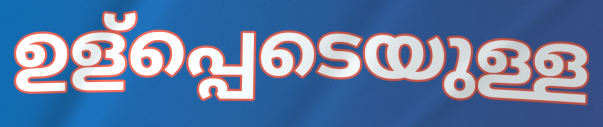
ഉള്പ്പെടെയുള്ള